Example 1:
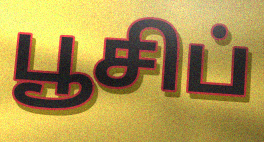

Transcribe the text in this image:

பூசிப்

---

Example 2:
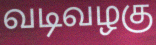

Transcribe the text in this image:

வடிவழகு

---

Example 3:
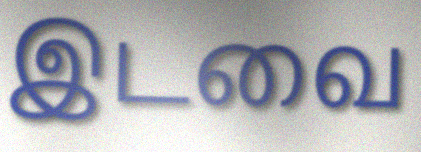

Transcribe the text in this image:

இடவை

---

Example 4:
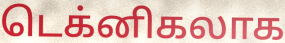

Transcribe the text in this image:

டெக்னிகலாக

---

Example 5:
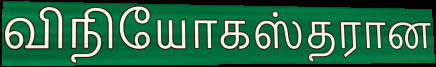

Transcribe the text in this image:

விநியோகஸ்தரான